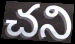
చని